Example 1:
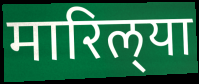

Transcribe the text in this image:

मारिल्या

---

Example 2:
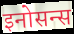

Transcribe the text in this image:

इनोसन्स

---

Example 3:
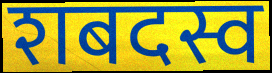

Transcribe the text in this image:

शबदस्व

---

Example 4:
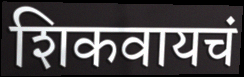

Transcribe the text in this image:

शिकवायचं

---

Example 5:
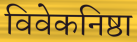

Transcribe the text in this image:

विवेकनिष्ठा